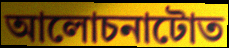
আলোচনাটোত